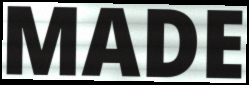
MADE